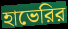
হাভেরির